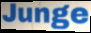
Junge